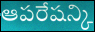
ఆపరేషన్కి